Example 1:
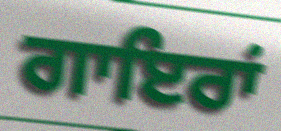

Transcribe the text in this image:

ਗਾਇਰਾਂ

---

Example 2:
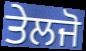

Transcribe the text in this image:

ਤੇਲਜੋ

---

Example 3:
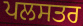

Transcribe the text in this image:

ਪਲਸਤਰ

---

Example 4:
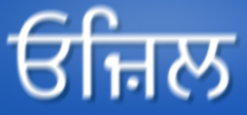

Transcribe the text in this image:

ਓਜ਼ਿਲ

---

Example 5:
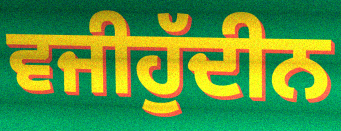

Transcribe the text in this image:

ਵਜੀਹੁੱਦੀਨ